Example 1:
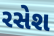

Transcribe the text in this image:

રસેશ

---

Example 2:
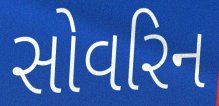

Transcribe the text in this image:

સોવરિન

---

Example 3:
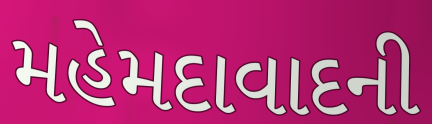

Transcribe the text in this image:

મહેમદાવાદની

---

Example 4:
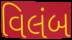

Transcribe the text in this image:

વિલંબ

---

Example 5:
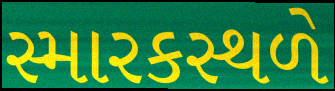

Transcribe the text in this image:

સ્મારકસ્થળે